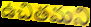
ఉచితమని